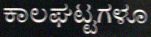
ಕಾಲಘಟ್ಟಗಳೂ